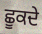
ਛੂਕਦੇ